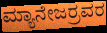
ಮ್ಯಾನೇಜರ್ರವರ